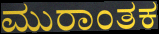
ಮುರಾಂತಕ